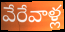
వేరేవాళ్ల